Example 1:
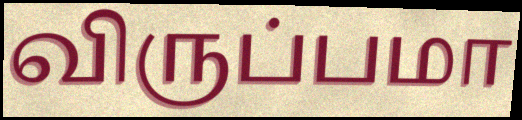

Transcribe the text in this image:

விருப்பமா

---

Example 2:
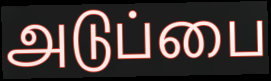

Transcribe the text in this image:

அடுப்பை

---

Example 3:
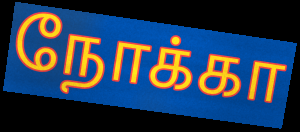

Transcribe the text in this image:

நோக்கா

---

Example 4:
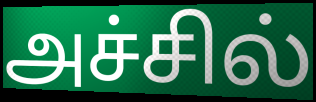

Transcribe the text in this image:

அச்சில்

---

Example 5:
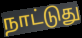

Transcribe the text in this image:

நாட்டுது